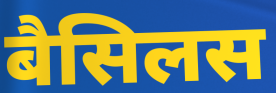
बैसिलस